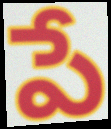
పే